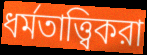
ধর্মতাত্ত্বিকরা